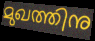
മുഖത്തിനു